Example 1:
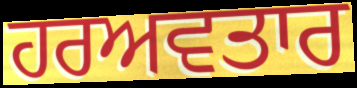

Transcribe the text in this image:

ਹਰਅਵਤਾਰ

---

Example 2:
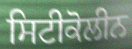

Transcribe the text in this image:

ਸਿਟੀਕੋਲੀਨ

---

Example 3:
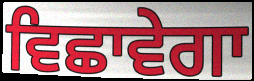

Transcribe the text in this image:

ਵਿਛਾਵੇਗਾ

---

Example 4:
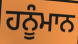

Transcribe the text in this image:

ਹਨੂੰਮਾਨ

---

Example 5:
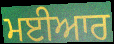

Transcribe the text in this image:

ਮਈਆਰ